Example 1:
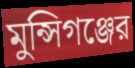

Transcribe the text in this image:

মুন্সিগঞ্জের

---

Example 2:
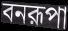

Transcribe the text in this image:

বনরূপা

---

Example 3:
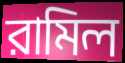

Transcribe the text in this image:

রামিল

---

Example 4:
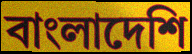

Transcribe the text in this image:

বাংলাদেশি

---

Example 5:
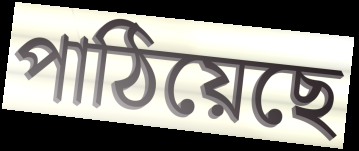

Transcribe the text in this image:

পাঠিয়েছে